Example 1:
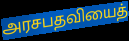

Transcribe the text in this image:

அரசபதவியைத்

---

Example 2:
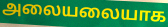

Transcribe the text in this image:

அலையலையாக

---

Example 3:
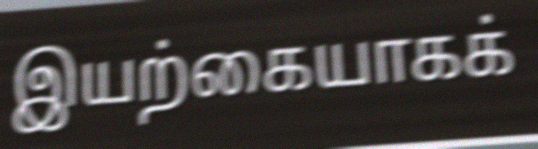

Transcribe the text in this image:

இயற்கையாகக்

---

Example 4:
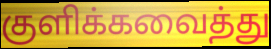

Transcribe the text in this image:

குளிக்கவைத்து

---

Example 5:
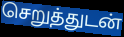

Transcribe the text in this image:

செறுத்துடன்